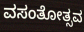
ವಸಂತೋತ್ಸವ